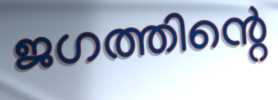
ജഗത്തിന്റെ